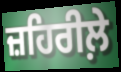
ਜ਼ਹਿਰੀਲ਼ੇ